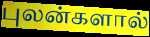
புலன்களால்